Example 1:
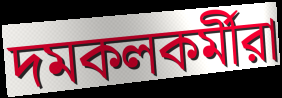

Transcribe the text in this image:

দমকলকর্মীরা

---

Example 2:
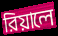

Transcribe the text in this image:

রিয়ালে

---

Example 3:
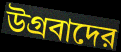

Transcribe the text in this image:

উগ্রবাদের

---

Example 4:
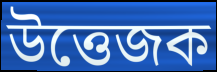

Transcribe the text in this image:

উত্তেজক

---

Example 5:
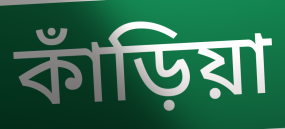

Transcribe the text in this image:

কাঁড়িয়া